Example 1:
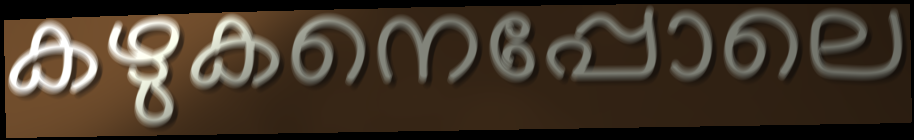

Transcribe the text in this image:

കഴുകനെപ്പോലെ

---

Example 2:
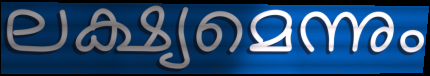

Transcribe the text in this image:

ലക്ഷ്യമെന്നും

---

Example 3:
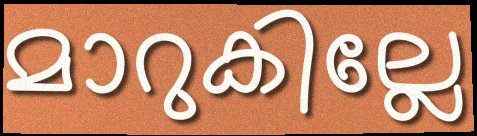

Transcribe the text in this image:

മാറുകില്ലേ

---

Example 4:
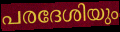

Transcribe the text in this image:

പരദേശിയും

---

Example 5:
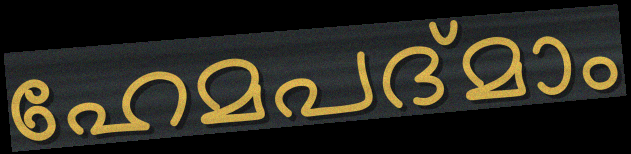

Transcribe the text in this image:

ഹേമപദ്മാം